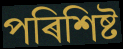
পৰিশিষ্ট